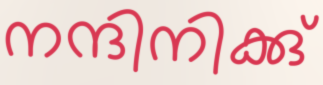
നന്ദിനിക്കു്